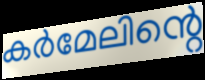
കർമേലിന്റെ